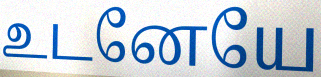
உடனேயே